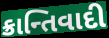
ક્રાન્તિવાદી